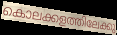
കൊലക്കളത്തിലേക്കു